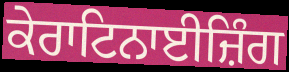
ਕੇਰਾਟਿਨਾਈਜ਼ਿੰਗ